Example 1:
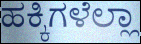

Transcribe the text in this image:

ಹಕ್ಕಿಗಳೆಲ್ಲಾ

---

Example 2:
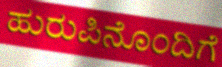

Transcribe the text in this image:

ಹುರುಪಿನೊಂದಿಗೆ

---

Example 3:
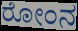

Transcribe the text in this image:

ರೋಂನ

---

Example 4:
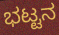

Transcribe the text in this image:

ಭಟ್ಟನ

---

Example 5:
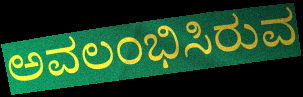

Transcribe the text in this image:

ಅವಲಂಭಿಸಿರುವ